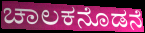
ಚಾಲಕನೊಡನೆ